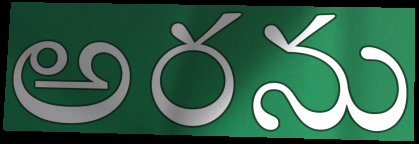
అరను